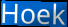
Hoek